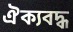
ঐক্যবদ্ধ